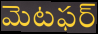
మెటఫర్